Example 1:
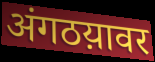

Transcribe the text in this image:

अंगठय़ावर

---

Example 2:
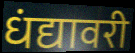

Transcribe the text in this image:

धंद्यावरी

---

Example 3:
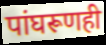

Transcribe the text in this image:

पांघरूणही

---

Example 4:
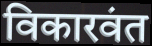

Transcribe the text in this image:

विकारवंत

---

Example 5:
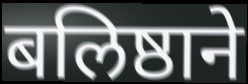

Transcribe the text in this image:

बलिष्ठाने